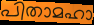
പിതാമഹാ